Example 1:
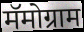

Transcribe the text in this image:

मॅमोग्राम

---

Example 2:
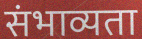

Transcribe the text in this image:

संभाव्यता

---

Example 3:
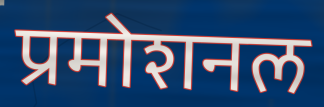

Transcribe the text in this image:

प्रमोशनल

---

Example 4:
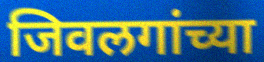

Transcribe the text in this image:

जिवलगांच्या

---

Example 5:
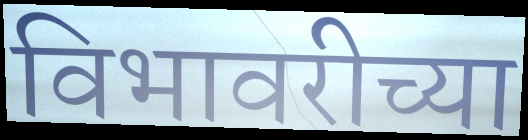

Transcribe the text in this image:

विभावरीच्या